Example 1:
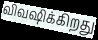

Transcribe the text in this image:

விவஷிக்கிறது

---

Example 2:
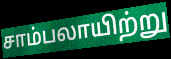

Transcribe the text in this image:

சாம்பலாயிற்று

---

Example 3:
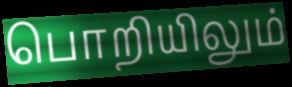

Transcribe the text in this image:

பொறியிலும்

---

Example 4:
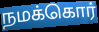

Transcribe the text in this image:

நமக்கொர்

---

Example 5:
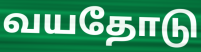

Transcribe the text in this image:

வயதோடு